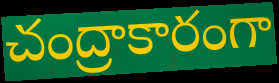
చంద్రాకారంగా